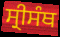
ਸ੍ਰੀਸੰਥ